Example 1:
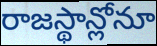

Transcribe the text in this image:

రాజస్థాన్లోనూ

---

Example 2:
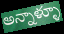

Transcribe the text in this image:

అన్నాళ్ళూ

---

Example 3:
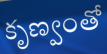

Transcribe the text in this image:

కృణ్వంతో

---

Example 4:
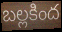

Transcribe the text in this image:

బల్లకింద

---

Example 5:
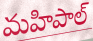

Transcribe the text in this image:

మహిపాల్